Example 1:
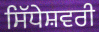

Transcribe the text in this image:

ਸਿੱਧੇਸ਼ਵਰੀ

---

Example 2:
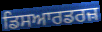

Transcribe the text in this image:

ਡਿਸਆਰਡਰਜ਼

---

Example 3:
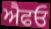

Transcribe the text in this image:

ਐਫਓ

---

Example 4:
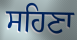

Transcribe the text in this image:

ਸਹਿਣਾ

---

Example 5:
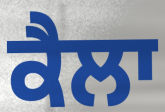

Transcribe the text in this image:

ਕੈਲਾ